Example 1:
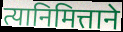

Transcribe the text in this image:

त्यानिमित्ताने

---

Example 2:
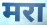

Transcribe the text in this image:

मरा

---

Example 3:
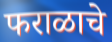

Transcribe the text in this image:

फराळाचे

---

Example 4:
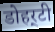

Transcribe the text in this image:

डोहर्टी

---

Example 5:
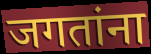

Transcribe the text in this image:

जगतांना